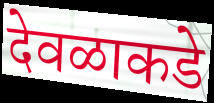
देवळाकडे